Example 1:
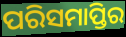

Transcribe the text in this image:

ପରିସମାପ୍ତିର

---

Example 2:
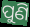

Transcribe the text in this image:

ପୁଣି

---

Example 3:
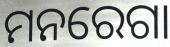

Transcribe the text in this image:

ମନରେଗା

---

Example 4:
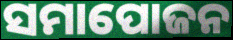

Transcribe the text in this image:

ସମାପୋଜନ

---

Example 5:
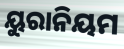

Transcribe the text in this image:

ୟୁରାନିୟମ